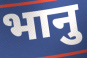
भानु